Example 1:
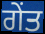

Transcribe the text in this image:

ਗੇਂਤ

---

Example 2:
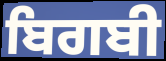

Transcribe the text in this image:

ਬਿਗਬੀ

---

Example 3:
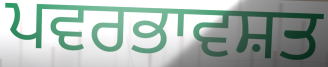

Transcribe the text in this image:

ਪਵਰਭਾਵਸ਼ਤ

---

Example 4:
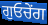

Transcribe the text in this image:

ਗੁਓਚੇਂਗ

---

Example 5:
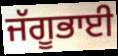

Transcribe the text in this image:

ਜੱਗੂਭਾਈ